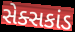
સેક્સકાંડ